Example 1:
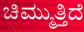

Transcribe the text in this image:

ಚಿಮ್ಮುತ್ತಿದೆ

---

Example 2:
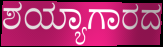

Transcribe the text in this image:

ಶಯ್ಯಾಗಾರದ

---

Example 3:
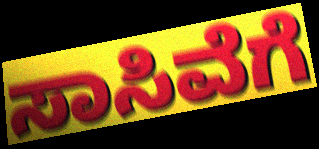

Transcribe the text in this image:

ಸಾಸಿವೆಗೆ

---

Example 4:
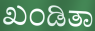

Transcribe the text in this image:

ಖಂಡಿತಾ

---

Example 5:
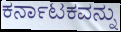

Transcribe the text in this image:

ಕರ್ನಾಟಕವನ್ನು